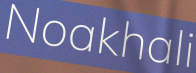
Noakhali